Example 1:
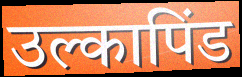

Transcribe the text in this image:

उल्‍कापिंड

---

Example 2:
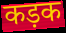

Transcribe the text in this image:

कड़क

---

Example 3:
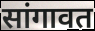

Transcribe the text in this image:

सांगावत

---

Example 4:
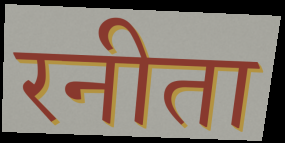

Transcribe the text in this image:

रनीता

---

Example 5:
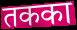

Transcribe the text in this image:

तकका